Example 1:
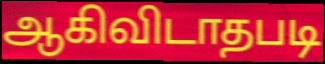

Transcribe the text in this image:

ஆகிவிடாதபடி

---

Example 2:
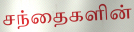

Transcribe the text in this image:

சந்தைகளின்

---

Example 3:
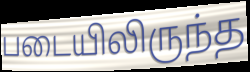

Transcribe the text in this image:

படையிலிருந்த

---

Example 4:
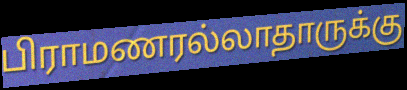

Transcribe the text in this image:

பிராமணரல்லாதாருக்கு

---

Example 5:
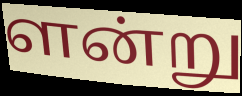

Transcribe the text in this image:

ளன்று